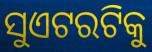
ସୁଏଟରଟିକୁ